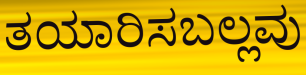
ತಯಾರಿಸಬಲ್ಲವು